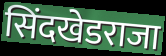
सिंदखेडराजा